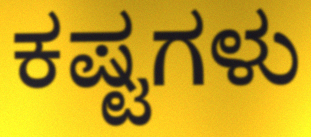
ಕಷ್ಟಗಳು